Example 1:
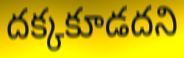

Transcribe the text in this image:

దక్కకూడదని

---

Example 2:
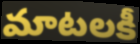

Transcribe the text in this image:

మాటలకీ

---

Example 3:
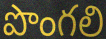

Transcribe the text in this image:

పొంగలి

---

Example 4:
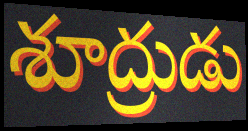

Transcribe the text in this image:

శూద్రుడు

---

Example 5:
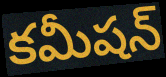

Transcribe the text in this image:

కమీషన్